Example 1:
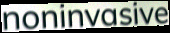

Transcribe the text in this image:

noninvasive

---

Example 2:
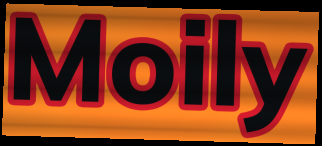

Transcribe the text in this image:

Moily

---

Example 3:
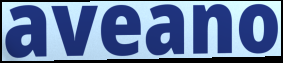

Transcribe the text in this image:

aveano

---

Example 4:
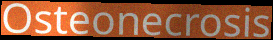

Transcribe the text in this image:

Osteonecrosis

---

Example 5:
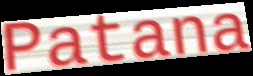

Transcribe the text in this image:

Patana